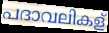
പദാവലികള്